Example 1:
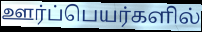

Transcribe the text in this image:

ஊர்ப்பெயர்களில்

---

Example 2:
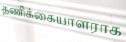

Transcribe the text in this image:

தணிக்கையாளராக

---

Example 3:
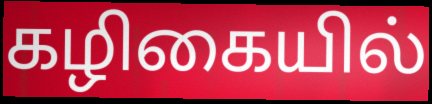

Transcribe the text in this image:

கழிகையில்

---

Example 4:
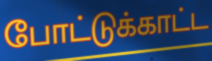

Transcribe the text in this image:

போட்டுக்காட்ட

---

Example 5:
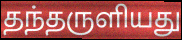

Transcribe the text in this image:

தந்தருளியது